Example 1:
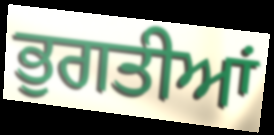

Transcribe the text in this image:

ਭੁਗਤੀਆਂ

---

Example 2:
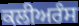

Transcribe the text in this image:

ਕਲੀਅਰੰਸ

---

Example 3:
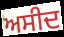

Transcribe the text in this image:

ਅਸੀਦ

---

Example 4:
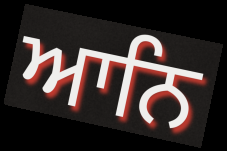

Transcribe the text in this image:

ਆਨਿ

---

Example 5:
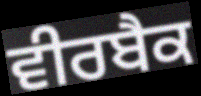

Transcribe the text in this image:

ਵੀਰਬੈਕ